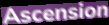
Ascension